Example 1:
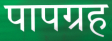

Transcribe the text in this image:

पापग्रह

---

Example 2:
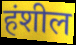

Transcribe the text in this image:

हंशील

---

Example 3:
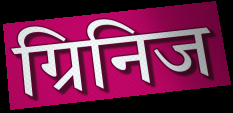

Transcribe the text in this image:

ग्रिनिज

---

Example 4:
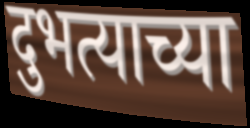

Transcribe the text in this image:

दुभत्याच्या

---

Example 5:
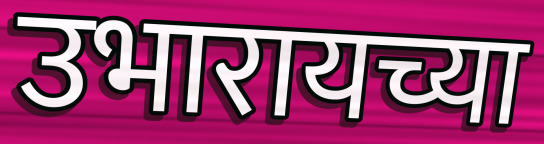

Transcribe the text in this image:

उभारायच्या